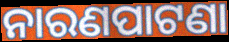
ନାରଣପାଟଣା